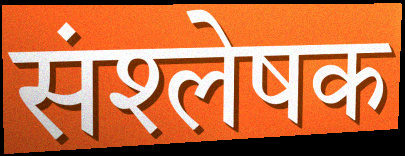
संश्लेषक